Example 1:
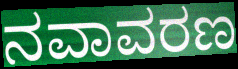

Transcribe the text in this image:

ನವಾವರಣ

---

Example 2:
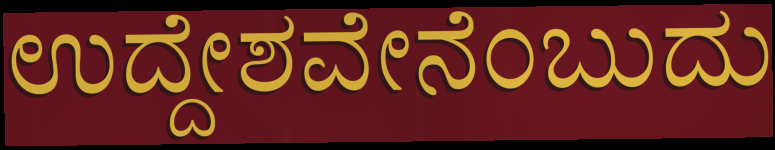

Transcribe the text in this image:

ಉದ್ದೇಶವೇನೆಂಬುದು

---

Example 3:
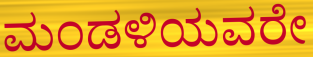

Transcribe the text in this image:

ಮಂಡಳಿಯವರೇ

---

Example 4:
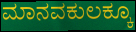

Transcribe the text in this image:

ಮಾನವಕುಲಕ್ಕೂ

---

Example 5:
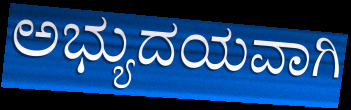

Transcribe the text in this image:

ಅಭ್ಯುದಯವಾಗಿ